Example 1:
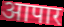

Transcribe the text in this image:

आपार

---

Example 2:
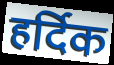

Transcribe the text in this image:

हर्दिक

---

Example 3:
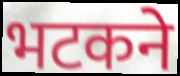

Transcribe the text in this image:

भटकने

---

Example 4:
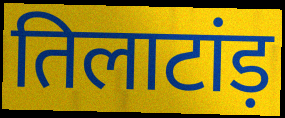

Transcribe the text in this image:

तिलाटांड़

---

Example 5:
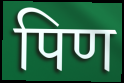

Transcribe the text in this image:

पिण